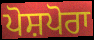
ਪੋਸ਼ਪੋਰਾ